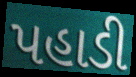
પહાડી